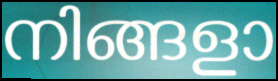
നിങ്ങളാ